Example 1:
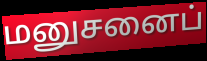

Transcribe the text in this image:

மனுசனைப்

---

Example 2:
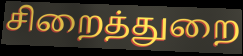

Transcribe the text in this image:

சிறைத்துறை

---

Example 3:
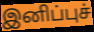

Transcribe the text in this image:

இனிப்புச்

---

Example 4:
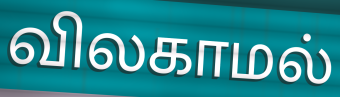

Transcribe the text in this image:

விலகாமல்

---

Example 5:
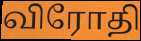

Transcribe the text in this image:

விரோதி